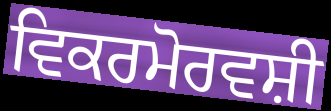
ਵਿਕਰਮੋਰਵਸ਼ੀ